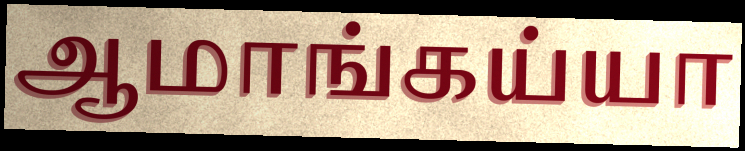
ஆமாங்கய்யா